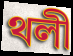
থলী